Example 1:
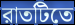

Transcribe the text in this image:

রাতটিতে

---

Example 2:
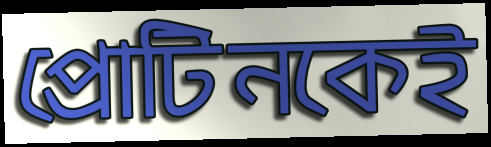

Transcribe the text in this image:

প্রোটিনকেই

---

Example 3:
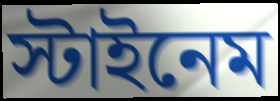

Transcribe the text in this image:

স্টাইনেম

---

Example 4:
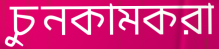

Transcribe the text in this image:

চুনকামকরা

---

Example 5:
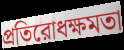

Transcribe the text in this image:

প্রতিরোধক্ষমতা